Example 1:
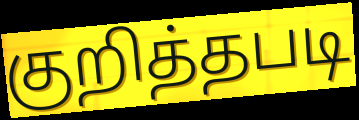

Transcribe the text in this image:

குறித்தபடி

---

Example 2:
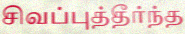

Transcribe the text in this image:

சிவப்புத்தீர்ந்த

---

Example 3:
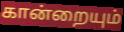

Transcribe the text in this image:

கான்றையும்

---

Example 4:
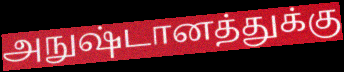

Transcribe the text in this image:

அநுஷ்டானத்துக்கு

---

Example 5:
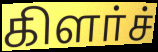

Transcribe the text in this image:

கிளர்ச்